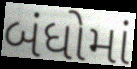
બંધોમાં